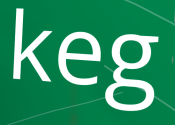
keg